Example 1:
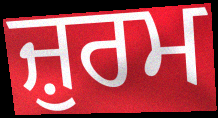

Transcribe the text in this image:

ਜ਼ੁਰਮ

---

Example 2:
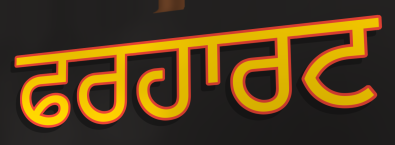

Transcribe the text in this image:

ਫਰਹਾਰਟ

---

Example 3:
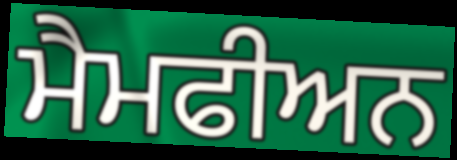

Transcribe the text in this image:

ਮੈਮਫੀਅਨ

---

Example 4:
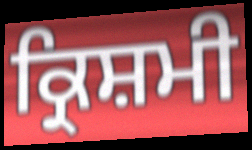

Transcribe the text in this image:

ਕ੍ਰਿਸ਼ਮੀ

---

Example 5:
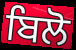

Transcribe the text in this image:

ਬਿਲੋ